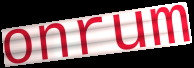
onrum